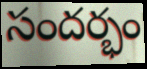
సందర్భం